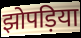
झोपड़िया